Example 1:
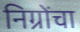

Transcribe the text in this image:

निग्रोंचा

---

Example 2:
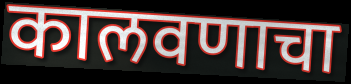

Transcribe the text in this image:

कालवणाचा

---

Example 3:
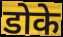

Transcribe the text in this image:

डोके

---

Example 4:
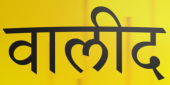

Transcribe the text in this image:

वालीद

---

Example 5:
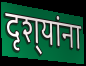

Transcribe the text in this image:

दृश्यांना